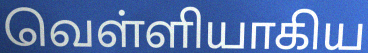
வெள்ளியாகிய